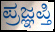
ಪ್ರಜ್ಞಪ್ತಿ